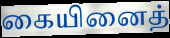
கையினைத்